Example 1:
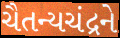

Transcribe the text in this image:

ચૈતન્યચંદ્રને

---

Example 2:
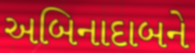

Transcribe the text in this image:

અબિનાદાબને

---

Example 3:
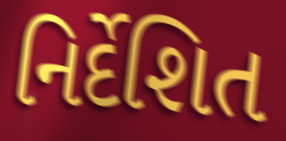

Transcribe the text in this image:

નિર્દેશિત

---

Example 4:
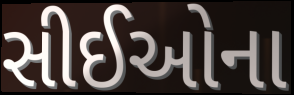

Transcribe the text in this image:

સીઈઓના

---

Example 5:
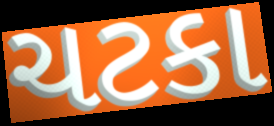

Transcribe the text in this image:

ચટકા